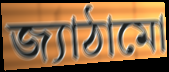
জ্যাঠামো